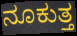
ನೂಕುತ್ತ